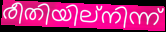
രീതിയില്നിന്ന്